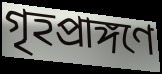
গৃহপ্রাঙ্গণে